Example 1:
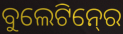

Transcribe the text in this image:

ବୁଲେଟିନ୍‍ରେ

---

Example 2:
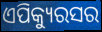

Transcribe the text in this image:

ଏପିକ୍ୟୁରସର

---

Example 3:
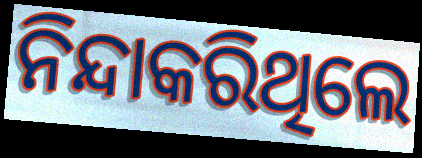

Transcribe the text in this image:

ନିନ୍ଦାକରିଥିଲେ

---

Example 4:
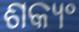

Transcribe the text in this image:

ଶକ୍ୟଂ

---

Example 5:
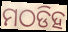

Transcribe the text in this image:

ମଠଡିହ